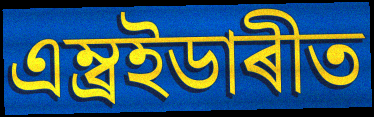
এম্ব্ৰইডাৰীত